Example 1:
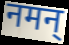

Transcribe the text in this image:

नमन्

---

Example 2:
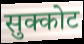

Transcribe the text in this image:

सुक्कोट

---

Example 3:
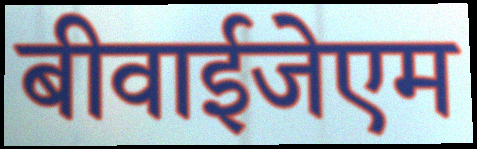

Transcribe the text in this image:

बीवाईजेएम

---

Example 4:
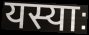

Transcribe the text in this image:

यस्याः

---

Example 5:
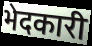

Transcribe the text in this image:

भेदकारी